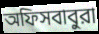
অফিসবাবুরা